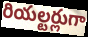
రియల్టర్లుగా